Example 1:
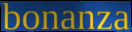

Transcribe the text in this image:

bonanza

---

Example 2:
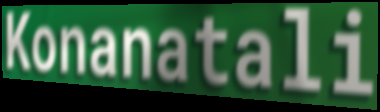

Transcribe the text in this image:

Konanatali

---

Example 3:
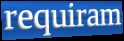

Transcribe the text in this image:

requiram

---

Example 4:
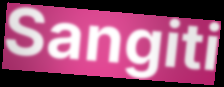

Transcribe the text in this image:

Sangiti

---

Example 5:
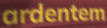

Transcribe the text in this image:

ardentem